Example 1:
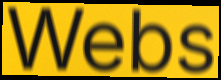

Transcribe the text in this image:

Webs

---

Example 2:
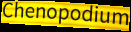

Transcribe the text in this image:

Chenopodium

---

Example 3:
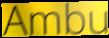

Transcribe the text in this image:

Ambu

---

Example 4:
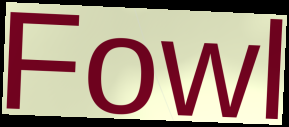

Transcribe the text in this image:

Fowl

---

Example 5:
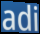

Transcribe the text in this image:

adi